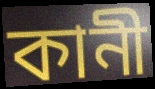
কানী